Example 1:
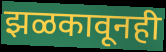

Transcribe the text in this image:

झळकावूनही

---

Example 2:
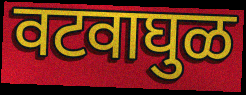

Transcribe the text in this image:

वटवाघुळ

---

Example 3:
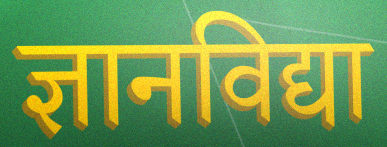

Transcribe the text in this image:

ज्ञानविद्या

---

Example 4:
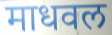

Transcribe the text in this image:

माधवल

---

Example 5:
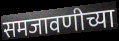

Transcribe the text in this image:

समजावणीच्या